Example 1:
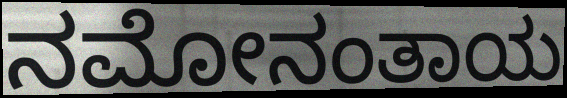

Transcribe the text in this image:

ನಮೋನಂತಾಯ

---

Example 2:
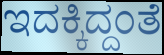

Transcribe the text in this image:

ಇದಕ್ಕಿದ್ದಂತೆ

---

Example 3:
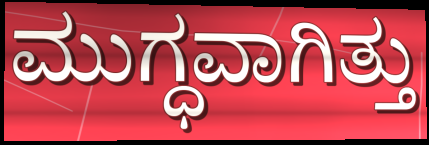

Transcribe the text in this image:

ಮುಗ್ಧವಾಗಿತ್ತು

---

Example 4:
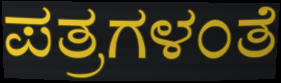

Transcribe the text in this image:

ಪತ್ರಗಳಂತೆ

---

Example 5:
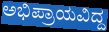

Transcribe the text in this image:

ಅಭಿಪ್ರಾಯವಿದ್ದ